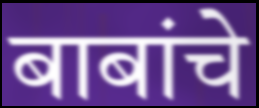
बाबांचे